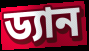
ড্যান